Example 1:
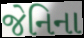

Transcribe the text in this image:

જેનિના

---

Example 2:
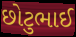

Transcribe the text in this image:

છોટુભાઈ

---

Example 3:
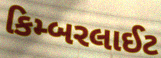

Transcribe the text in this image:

કિમ્બરલાઈટ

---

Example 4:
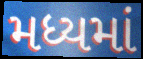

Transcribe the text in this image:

મધ્યમાં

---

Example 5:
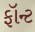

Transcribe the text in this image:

ફૉન્ટ